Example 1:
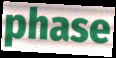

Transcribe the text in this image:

phase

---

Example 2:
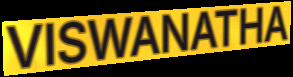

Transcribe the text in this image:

VISWANATHA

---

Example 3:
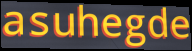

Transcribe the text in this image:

asuhegde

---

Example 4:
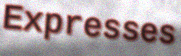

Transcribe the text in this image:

Expresses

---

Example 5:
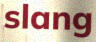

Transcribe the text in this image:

slang